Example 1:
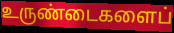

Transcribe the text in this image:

உருண்டைகளைப்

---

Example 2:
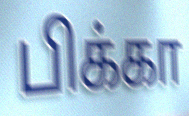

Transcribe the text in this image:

பிக்கா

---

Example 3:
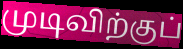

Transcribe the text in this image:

முடிவிற்குப்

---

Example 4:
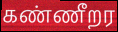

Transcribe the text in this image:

கண்ணீறர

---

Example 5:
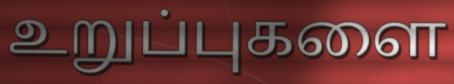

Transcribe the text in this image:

உறுப்புகளை